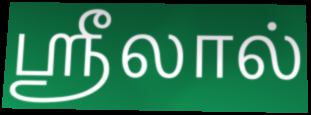
ஸ்ரீலால்